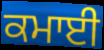
ਕਮਾਈ